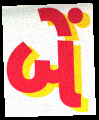
બેં